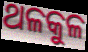
ଥଳକୁଳ